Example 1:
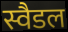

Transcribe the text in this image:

स्वैडल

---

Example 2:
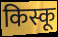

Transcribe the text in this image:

किस्कू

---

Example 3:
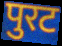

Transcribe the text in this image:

पुरट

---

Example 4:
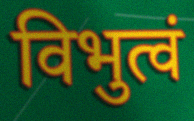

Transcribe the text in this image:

विभुत्वं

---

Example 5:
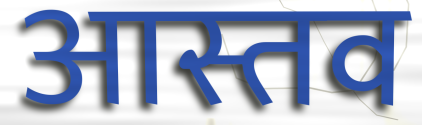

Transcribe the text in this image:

आस्तव